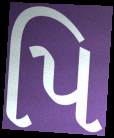
પિ